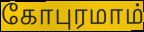
கோபுரமாம்